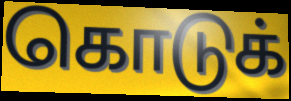
கொடுக்